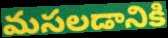
మసలడానికి